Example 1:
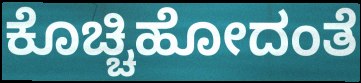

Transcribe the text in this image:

ಕೊಚ್ಚಿಹೋದಂತೆ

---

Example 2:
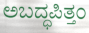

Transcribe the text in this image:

ಅಬದ್ಧಪಿತ್ತಂ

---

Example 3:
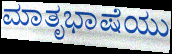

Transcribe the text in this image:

ಮಾತೃಭಾಷೆಯು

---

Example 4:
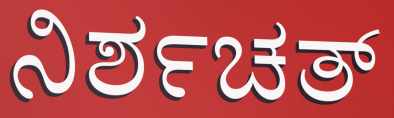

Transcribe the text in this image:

ನಿರ್ಶಚತ್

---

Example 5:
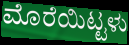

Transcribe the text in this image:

ಮೊರೆಯಿಟ್ಟಳು